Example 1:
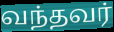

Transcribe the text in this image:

வந்தவர்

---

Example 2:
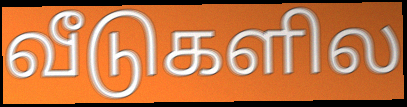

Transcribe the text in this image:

வீடுகளில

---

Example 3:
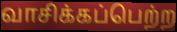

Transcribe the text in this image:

வாசிக்கப்பெற்ற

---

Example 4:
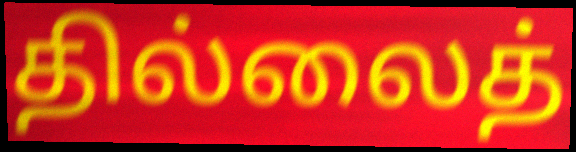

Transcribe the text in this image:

தில்லைத்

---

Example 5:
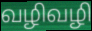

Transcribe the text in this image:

வழிவழி